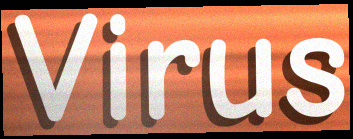
Virus